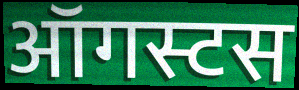
ऑगस्टस